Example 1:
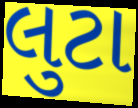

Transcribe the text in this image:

લુટા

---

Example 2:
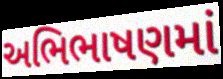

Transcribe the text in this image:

અભિભાષણમાં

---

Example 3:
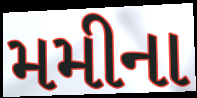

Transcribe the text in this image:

મમીના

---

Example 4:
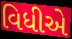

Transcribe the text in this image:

વિધીએ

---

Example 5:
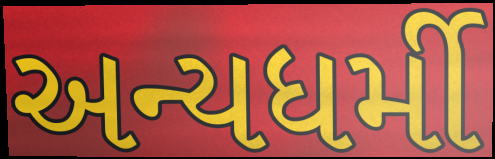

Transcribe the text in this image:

અન્યધર્મી